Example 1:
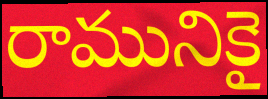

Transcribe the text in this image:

రామునికై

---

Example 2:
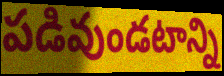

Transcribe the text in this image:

పడివుండటాన్ని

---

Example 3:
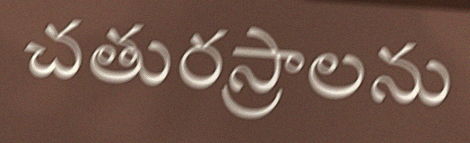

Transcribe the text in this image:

చతురస్రాలను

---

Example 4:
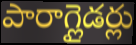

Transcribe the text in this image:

పారాగ్లైడర్లు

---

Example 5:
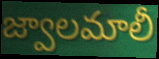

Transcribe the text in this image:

జ్వాలమాలీ